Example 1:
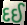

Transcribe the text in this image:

દઈ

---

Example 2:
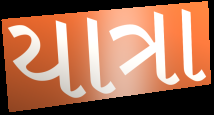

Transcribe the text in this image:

યાત્રા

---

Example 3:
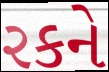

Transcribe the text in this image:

રકને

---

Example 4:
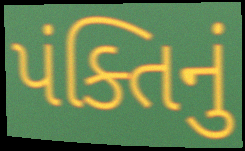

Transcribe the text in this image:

પંક્તિનું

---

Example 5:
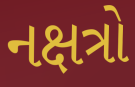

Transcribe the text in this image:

નક્ષત્રો